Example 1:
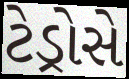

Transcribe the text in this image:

ટેડ્રોસે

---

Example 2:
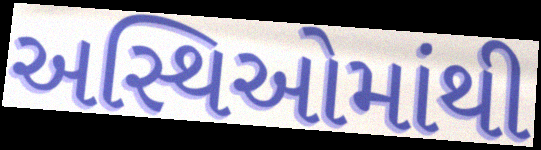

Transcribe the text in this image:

અસ્થિઓમાંથી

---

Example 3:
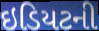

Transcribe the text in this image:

ઇડિયટની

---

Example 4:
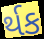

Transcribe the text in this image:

ર્થક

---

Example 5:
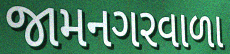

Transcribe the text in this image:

જામનગરવાળા